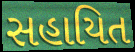
સહાયિત